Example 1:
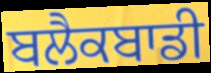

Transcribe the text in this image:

ਬਲੈਕਬਾਡੀ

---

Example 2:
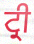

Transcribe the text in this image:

ਟ੍ਰੀ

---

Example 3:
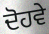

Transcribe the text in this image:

ਦੋਹਵੇ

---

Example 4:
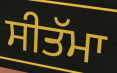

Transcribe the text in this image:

ਸੀਤੱਮਾ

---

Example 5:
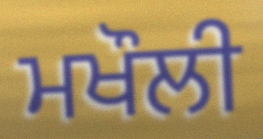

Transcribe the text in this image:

ਮਖੌਲੀ